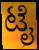
ಟೈ